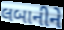
લબાનીને